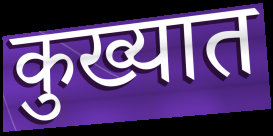
कुख्यात